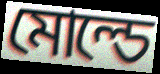
মোল্ডে